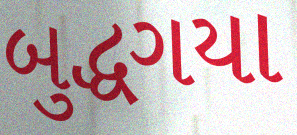
બુદ્ધગયા